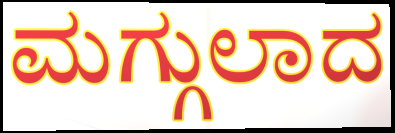
ಮಗ್ಗುಲಾದ